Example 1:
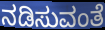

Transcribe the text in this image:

ನಡಿಸುವಂತೆ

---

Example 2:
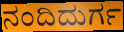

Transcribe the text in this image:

ನಂದಿದುರ್ಗ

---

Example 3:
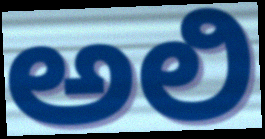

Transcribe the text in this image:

ಅಲಿ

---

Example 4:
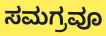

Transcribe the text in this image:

ಸಮಗ್ರವೂ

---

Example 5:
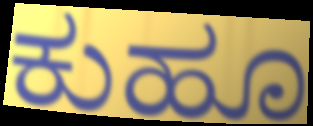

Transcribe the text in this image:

ಕುಹೂ